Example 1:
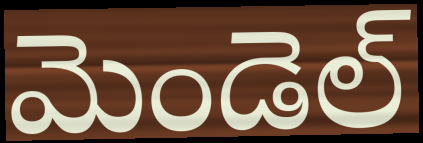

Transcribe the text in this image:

మెండెల్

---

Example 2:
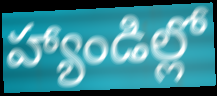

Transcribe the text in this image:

హ్యాండిల్లో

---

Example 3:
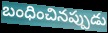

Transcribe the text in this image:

బంధించినప్పుడు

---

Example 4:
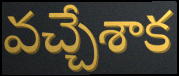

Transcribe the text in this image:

వచ్చేశాక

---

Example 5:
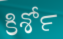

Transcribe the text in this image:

కిశోర్‍